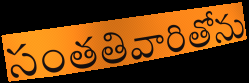
సంతతివారితోను